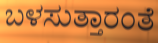
ಬಳಸುತ್ತಾರಂತೆ